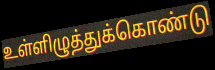
உள்ளிழுத்துக்கொண்டு